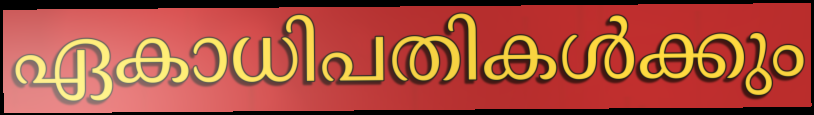
ഏകാധിപതികൾക്കും